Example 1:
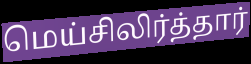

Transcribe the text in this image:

மெய்சிலிர்த்தார்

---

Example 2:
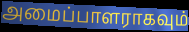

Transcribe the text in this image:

அமைப்பாளராகவும்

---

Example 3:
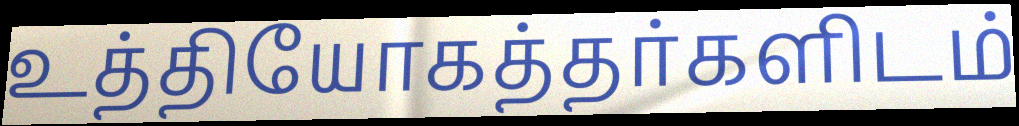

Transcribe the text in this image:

உத்தியோகத்தர்களிடம்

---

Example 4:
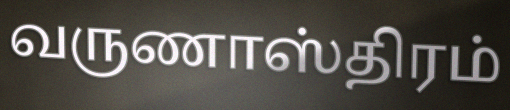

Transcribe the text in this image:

வருணாஸ்திரம்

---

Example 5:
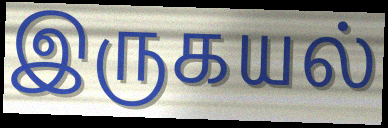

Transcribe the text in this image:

இருகயல்